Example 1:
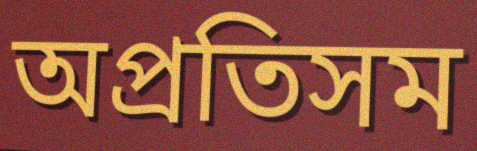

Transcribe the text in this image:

অপ্রতিসম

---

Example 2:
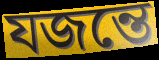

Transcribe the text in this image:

যজন্তে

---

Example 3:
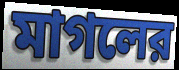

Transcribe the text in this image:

মাগলের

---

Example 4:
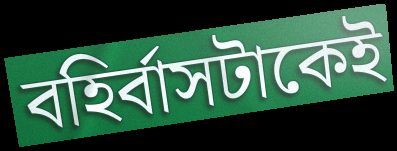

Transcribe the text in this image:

বহির্বাসটাকেই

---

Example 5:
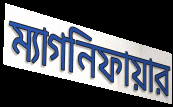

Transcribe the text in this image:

ম্যাগনিফায়ার